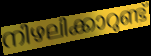
നിഴലിക്കാറുണ്ട്